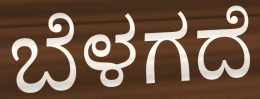
ಬೆಳಗದೆ